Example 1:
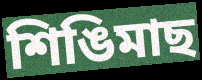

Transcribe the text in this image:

শিঙিমাছ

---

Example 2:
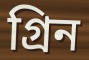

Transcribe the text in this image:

গ্রিন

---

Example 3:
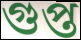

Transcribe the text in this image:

গুপ্ত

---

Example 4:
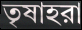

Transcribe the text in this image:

তৃষাহরা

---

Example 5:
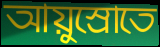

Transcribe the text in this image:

আয়ুস্রোতে